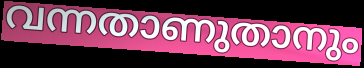
വന്നതാണുതാനും